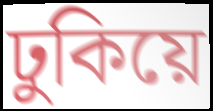
ঢুকিয়ে